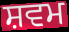
ਸ਼ਵਮ